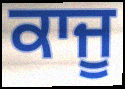
ਕਾਜੂ